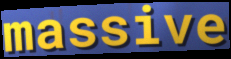
massive